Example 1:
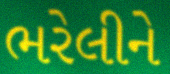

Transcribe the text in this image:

ભરેલીને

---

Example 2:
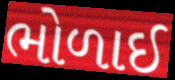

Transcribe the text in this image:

ભોળાઈ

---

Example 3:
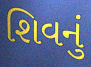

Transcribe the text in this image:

શિવનું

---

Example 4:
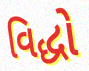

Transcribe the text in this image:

વિદ્ધો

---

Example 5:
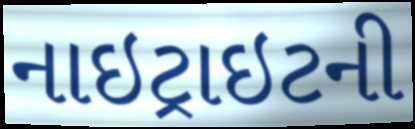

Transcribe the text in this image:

નાઇટ્રાઇટની